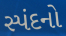
સ્પંદનો